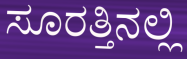
ಸೂರತ್ತಿನಲ್ಲಿ